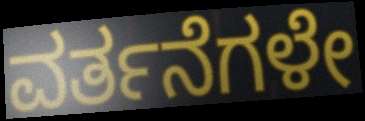
ವರ್ತನೆಗಳೇ